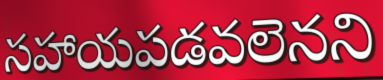
సహాయపడవలెనని